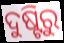
ଦୁଷ୍ଟିରୁ